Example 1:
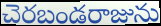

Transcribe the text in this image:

చెరబండరాజును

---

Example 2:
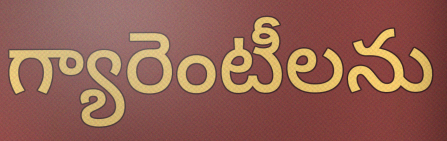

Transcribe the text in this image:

గ్యారెంటీలను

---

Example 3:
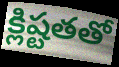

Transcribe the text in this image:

క్లిష్టతతో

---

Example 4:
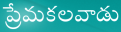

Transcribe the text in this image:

ప్రేమకలవాడు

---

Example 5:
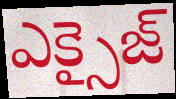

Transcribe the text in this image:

ఎక్సైజ్